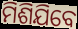
ମିଶିଯିବେ